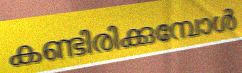
കണ്ടിരിക്കുമ്പോൾ